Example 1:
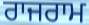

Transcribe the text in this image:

ਰਾਜਰਾਮ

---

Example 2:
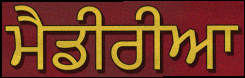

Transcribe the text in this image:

ਮੈਡੀਰੀਆ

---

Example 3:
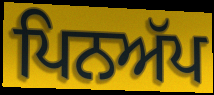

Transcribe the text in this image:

ਪਿਨਅੱਪ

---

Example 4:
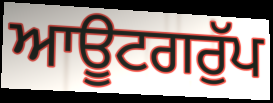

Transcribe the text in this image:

ਆਊਟਗਰੁੱਪ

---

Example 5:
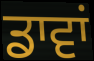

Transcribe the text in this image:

ਡਾਵਾਂ